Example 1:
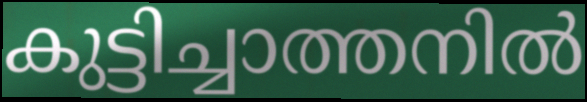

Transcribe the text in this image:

കുട്ടിച്ചാത്തനിൽ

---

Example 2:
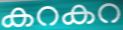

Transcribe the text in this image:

കറകറ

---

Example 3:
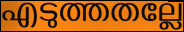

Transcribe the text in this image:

എടുത്തതല്ലേ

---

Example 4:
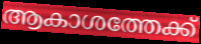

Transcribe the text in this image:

ആകാശത്തേക്ക്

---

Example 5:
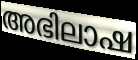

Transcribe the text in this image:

അഭിലാഷ